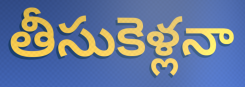
తీసుకెళ్లనా